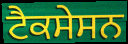
ਟੈਕਸੇਸਨ